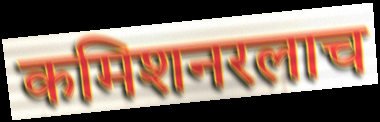
कमिशनरलाच